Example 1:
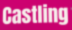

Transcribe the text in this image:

Castling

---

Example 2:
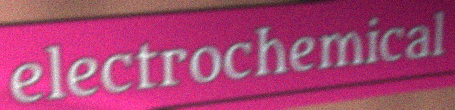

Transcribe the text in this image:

electrochemical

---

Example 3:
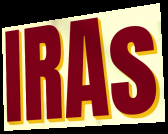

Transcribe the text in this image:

IRAs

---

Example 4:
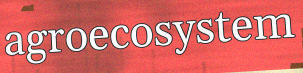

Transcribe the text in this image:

agroecosystem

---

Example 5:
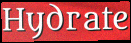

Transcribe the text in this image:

Hydrate